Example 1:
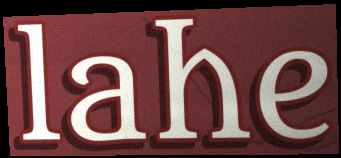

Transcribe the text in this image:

lahe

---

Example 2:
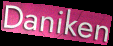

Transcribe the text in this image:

Daniken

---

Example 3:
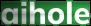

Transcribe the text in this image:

aihole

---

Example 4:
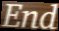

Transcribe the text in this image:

End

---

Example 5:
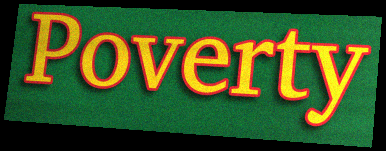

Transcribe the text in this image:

Poverty